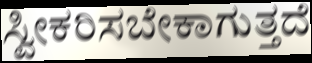
ಸ್ವೀಕರಿಸಬೇಕಾಗುತ್ತದೆ